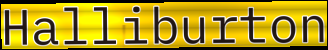
Halliburton